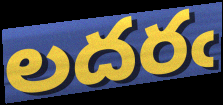
లదరఁ